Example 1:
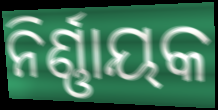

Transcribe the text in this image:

ନିର୍ଣ୍ଣାୟକ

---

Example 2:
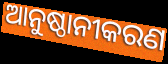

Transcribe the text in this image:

ଆନୁଷ୍ଠାନୀକରଣ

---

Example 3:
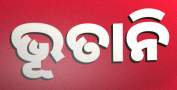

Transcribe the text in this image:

ଭୂତାନି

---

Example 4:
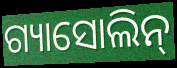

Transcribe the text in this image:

ଗ୍ୟାସୋଲିନ୍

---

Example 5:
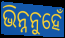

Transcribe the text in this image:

ଭିନ୍ନନୁହେଁ